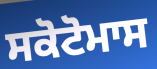
ਸਕੋਟੋਮਾਸ